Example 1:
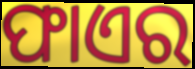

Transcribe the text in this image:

ଫାଏର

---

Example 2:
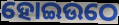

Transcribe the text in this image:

ହୋଇଉଠେ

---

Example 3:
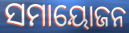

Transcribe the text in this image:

ସମାୟୋଜନ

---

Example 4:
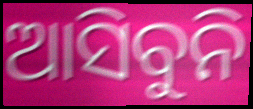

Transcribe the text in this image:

ଆସିବୁନି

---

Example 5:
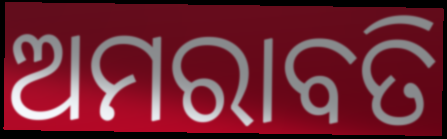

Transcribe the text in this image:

ଅମରାବତି